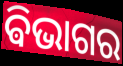
ଵିଭାଗର